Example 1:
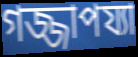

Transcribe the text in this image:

গজ্জাপয্যা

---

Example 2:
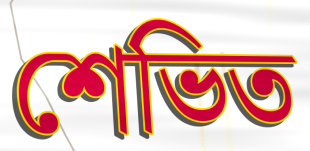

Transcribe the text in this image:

শেভিত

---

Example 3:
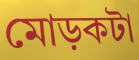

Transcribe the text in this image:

মোড়কটা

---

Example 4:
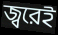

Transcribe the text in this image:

জ্বরেই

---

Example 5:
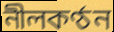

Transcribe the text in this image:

নীলকণ্ঠন